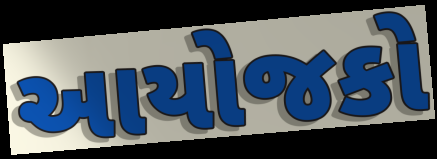
આયોજકો